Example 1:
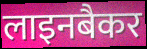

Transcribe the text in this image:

लाइनबैकर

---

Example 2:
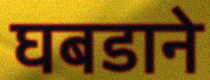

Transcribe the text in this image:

घबडाने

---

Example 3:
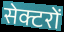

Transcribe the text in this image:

सेक्टरों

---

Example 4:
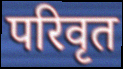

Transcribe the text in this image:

परिवृत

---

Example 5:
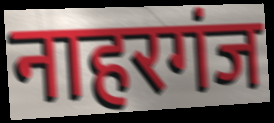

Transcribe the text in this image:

नाहरगंज